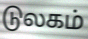
டுலகம்